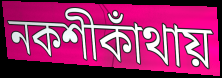
নকশীকাঁথায়